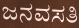
ಜನವಸತಿ